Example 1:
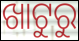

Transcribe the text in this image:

ଖାଟୁରୁ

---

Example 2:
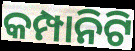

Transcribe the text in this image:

କମ୍ପାନିଟି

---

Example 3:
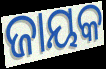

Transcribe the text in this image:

ଜାୟକ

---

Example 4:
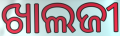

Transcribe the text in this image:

ଖାଲଜୀ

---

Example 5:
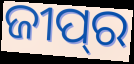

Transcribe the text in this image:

ଜୀପ୍‌ର